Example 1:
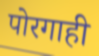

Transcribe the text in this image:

पोरगाही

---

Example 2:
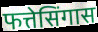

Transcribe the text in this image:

फत्तेसिंगास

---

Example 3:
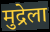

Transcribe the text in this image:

मुद्रेला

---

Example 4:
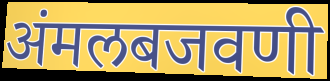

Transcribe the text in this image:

अंमलबजवणी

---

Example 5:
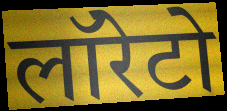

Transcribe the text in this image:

लॉरेटो